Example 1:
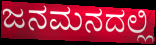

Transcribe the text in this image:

ಜನಮನದಲ್ಲಿ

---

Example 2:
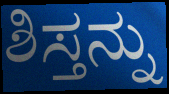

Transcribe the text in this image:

ಶಿಸ್ತನ್ನು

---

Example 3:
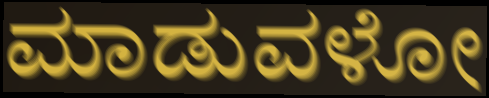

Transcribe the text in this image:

ಮಾಡುವಳೋ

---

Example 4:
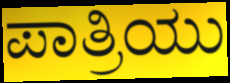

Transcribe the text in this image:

ಪಾತ್ರಿಯು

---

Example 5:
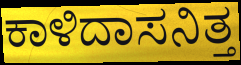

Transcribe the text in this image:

ಕಾಳಿದಾಸನಿತ್ತ